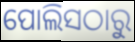
ପୋଲିସଠାରୁ